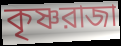
কৃষ্ণরাজা